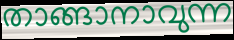
താങ്ങാനാവുന്ന